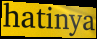
hatinya